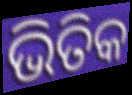
ଭିତିକ